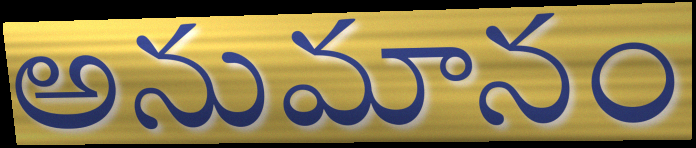
అనుమానం